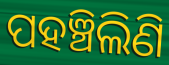
ପହଞ୍ଚିଲିଣି